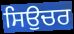
ਸਿਉਚਰ